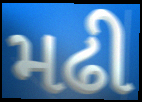
મઢી